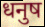
धनुष